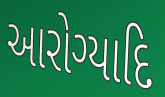
આરોગ્યાદિ